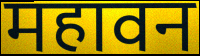
महावन